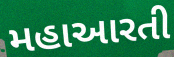
મહાઆરતી